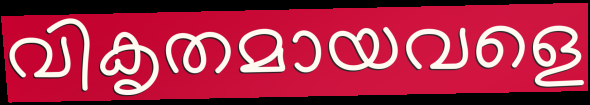
വികൃതമായവളെ